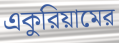
একুরিয়ামের